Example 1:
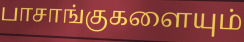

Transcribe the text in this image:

பாசாங்குகளையும்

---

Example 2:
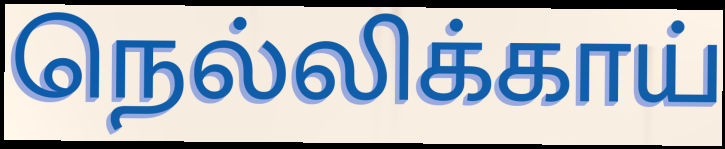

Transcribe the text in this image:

நெல்லிக்காய்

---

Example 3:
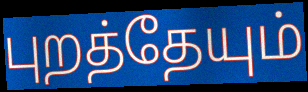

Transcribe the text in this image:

புறத்தேயும்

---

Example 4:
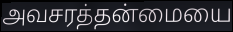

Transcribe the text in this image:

அவசரத்தன்மையை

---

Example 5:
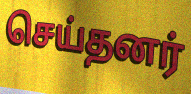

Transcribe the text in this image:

செய்தனர்